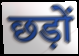
छड़ों